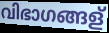
വിഭാഗങ്ങള്